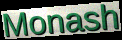
Monash